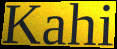
Kahi